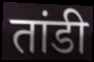
तांडी